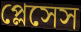
প্লেসেস